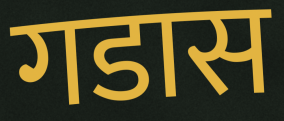
गडास